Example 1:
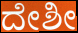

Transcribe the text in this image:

ದೇಶೀ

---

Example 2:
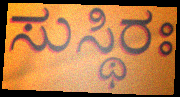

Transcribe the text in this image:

ಸುಸ್ಥಿರಃ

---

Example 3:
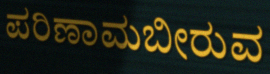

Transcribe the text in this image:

ಪರಿಣಾಮಬೀರುವ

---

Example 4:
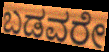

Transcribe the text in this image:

ಬಡವರೇ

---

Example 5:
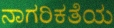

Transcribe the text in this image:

ನಾಗರಿಕತೆಯ